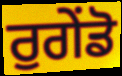
ਰੁਗੇਂਡੋ